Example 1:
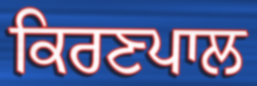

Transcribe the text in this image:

ਕਿਰਣਪਾਲ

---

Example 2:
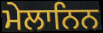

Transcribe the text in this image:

ਮੇਲਾਨਿਨ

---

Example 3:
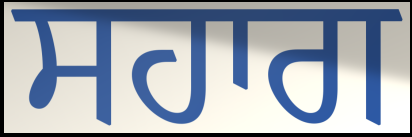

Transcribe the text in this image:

ਸਹਾਗ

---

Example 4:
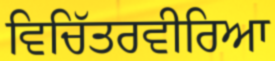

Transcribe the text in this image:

ਵਿਚਿੱਤਰਵੀਰਿਆ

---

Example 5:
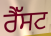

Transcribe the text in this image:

ਰੈੱਸਟ